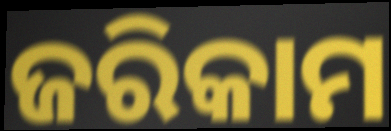
ଜରିକାମ